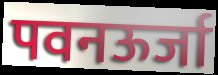
पवनऊर्जा